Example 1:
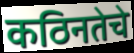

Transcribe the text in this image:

कठिनतेचे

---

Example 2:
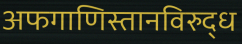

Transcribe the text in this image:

अफगाणिस्तानविरुद्ध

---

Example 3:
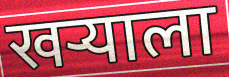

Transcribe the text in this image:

खर्‍याला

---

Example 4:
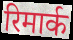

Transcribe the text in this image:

रिमार्क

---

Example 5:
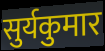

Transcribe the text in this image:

सुर्यकुमार